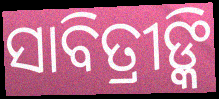
ସାବିତ୍ରୀଙ୍କି